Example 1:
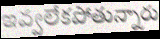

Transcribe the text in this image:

ఇవ్వలేకపోతున్నారు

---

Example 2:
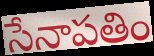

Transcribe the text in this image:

సేనాపతిం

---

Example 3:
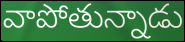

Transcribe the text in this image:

వాపోతున్నాడు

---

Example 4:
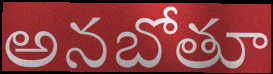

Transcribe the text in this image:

అనబోతూ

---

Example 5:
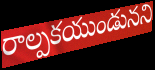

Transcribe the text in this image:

రాల్పకయుండునని